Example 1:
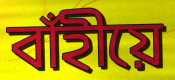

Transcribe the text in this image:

বাঁহীয়ে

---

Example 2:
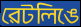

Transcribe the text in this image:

ৱেটলিঙে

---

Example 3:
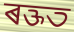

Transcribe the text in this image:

ৰক্তত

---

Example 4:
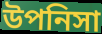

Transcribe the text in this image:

উপনিসা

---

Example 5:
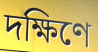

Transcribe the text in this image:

দক্ষিণে